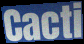
Cacti